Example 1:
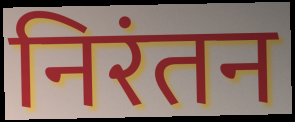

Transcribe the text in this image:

निरंतन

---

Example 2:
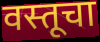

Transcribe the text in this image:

वस्तूचा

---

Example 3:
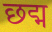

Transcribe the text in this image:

छद्म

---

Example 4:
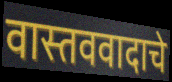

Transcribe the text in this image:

वास्तववादाचे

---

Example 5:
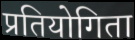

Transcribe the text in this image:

प्रतियोगिता